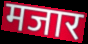
मजार